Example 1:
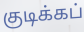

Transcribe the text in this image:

குடிக்கப்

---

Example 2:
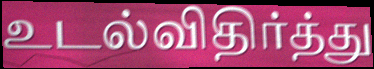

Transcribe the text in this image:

உடல்விதிர்த்து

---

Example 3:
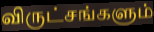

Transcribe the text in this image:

விருட்சங்களும்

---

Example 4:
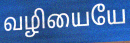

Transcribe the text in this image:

வழியையே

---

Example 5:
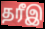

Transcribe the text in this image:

தரீஇ